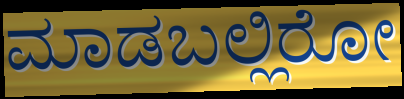
ಮಾಡಬಲ್ಲಿರೋ